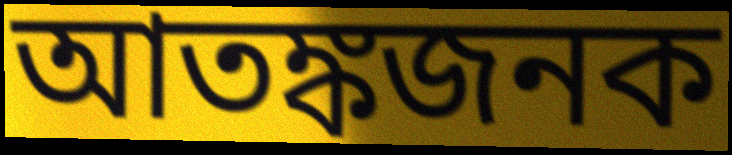
আতঙ্কজনক